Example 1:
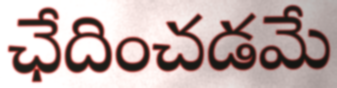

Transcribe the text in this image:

ఛేదించడమే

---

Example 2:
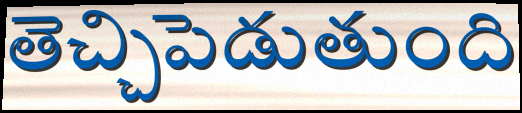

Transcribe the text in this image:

తెచ్చిపెడుతుంది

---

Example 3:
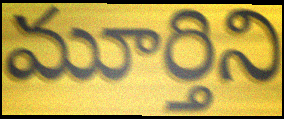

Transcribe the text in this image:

మూర్తిని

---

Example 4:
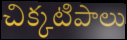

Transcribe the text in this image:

చిక్కటిపాలు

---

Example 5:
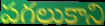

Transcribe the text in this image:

పగలుకాని